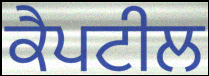
ਕੈਪਟੀਲ